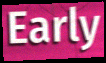
Early